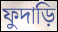
ফুদাড়ি